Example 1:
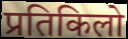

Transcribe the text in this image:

प्रतिकिलो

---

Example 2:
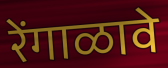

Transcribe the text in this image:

रेंगाळावे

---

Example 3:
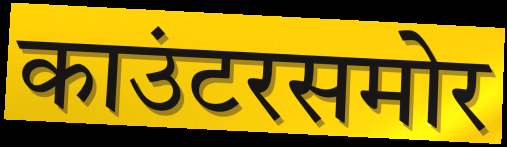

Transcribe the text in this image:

काउंटरसमोर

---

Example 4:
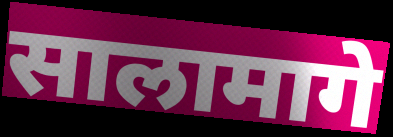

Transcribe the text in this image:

सालामागे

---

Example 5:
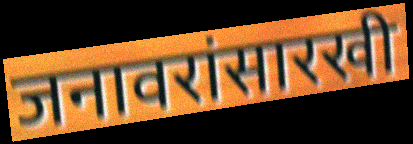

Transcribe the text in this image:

जनावरांसारखी